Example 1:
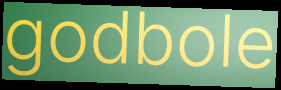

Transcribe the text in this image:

godbole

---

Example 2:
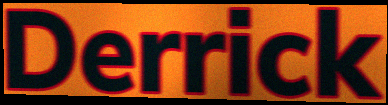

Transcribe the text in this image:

Derrick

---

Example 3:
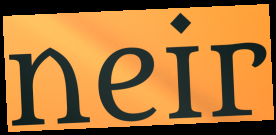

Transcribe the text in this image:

neir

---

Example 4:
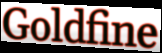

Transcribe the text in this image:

Goldfine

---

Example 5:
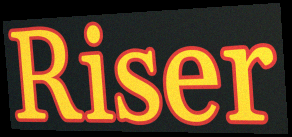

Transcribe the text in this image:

Riser